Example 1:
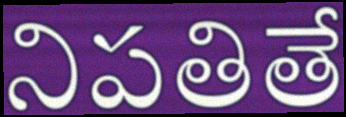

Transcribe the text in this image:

నిపతితే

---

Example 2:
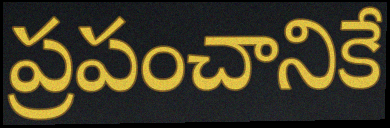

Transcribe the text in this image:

ప్రపంచానికే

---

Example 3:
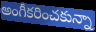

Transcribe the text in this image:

అంగీకరించకున్నా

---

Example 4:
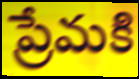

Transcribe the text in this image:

ప్రేమకి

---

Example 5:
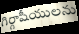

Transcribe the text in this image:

గిర్గాషీయులను